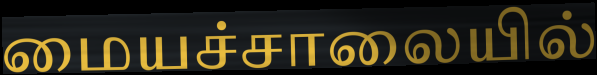
மையச்சாலையில்